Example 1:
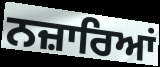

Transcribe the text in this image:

ਨਜ਼ਾਰਿਆਂ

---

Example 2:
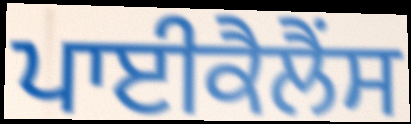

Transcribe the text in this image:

ਪਾਈਕੈਲੈਂਸ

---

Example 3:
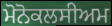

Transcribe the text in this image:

ਮੋਨੋਕਲਸੀਅਮ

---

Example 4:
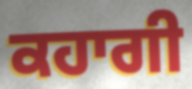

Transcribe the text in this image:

ਕਹਾਗੀ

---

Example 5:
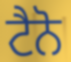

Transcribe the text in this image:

ਟੈਨੋ